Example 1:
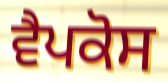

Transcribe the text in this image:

ਵੈਪਕੋਸ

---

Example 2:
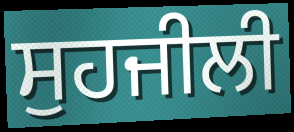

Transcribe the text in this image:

ਸੁਹਜੀਲੀ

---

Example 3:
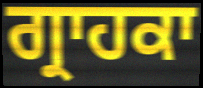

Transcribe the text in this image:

ਗ੍ਰਾਹਕਾ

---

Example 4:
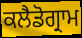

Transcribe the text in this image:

ਕਲੈਡੋਗ੍ਰਾਮ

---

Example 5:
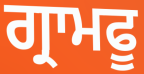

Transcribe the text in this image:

ਗ੍ਰਾਮਫੂ